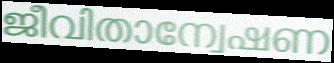
ജീവിതാന്വേഷണ